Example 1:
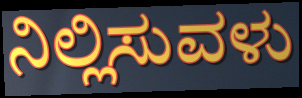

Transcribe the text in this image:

ನಿಲ್ಲಿಸುವಳು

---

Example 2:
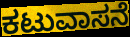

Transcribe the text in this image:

ಕಟುವಾಸನೆ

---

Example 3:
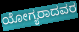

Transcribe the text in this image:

ಯೋಗ್ಯರಾದವರ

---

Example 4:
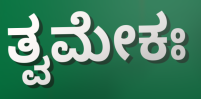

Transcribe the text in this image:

ತ್ವಮೇಕಃ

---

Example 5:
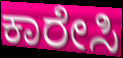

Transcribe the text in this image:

ಕಾರೇಸಿ